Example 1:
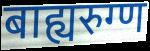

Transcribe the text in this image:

बाह्यरुग्ण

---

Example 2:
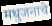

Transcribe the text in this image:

मधुजनाचे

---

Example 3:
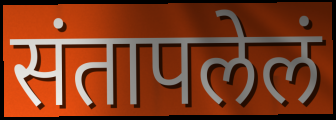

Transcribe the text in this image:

संतापलेलं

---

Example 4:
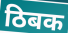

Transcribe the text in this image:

ठिबक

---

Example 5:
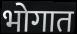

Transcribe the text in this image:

भोगात